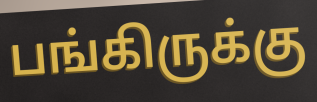
பங்கிருக்கு